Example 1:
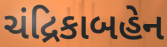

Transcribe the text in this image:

ચંદ્રિકાબહેન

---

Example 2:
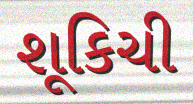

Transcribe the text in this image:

શૂકિચી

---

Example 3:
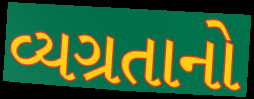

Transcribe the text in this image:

વ્યગ્રતાનો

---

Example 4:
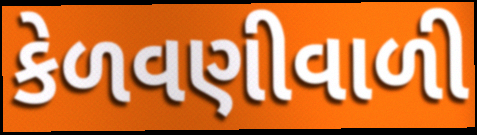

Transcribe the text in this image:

કેળવણીવાળી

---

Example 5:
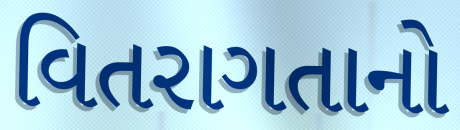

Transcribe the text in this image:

વિતરાગતાનો